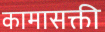
कामासक्ती